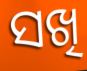
ସଖି